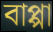
বাপ্পা